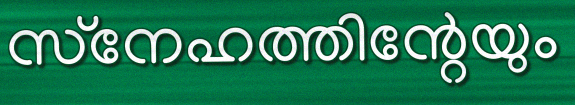
സ്‌നേഹത്തിന്റേയും